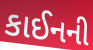
કાઈનની